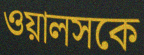
ওয়ালসকে